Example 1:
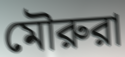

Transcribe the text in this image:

মৌরুরা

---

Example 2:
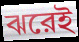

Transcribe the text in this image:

ঝরেই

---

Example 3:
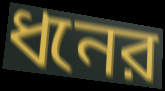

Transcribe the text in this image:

ধনের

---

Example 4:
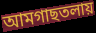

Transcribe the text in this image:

আমগাছতলায়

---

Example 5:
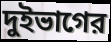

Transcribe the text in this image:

দুইভাগের